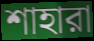
শাহারা